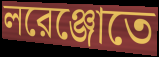
লরেঞ্জোতে